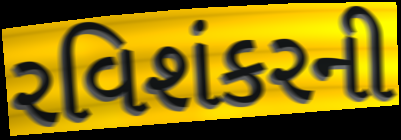
રવિશંકરની